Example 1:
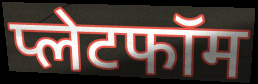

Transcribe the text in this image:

प्लेटफॉम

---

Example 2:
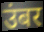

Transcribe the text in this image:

उंबर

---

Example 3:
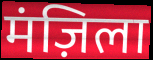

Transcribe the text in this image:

मंज़िला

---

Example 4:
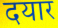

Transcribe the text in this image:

दयार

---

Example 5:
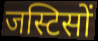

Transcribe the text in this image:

जस्टिसों